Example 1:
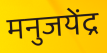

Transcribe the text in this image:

मनुजयेंद्र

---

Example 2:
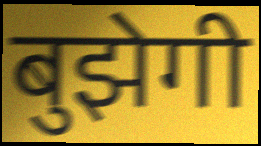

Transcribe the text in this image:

बुझेगी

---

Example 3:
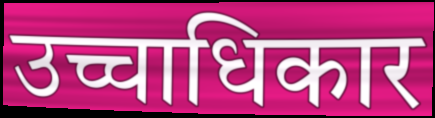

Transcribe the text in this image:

उच्चाधिकार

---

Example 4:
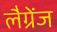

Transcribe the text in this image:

लैग्रेंज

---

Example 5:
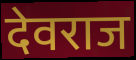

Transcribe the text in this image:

देवराज